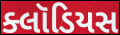
ક્લૉડિયસ